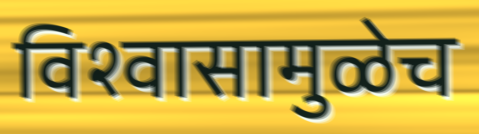
विश्वासामुळेच